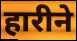
हारीने